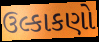
ઉલ્કાકણો